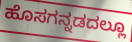
ಹೊಸಗನ್ನಡದಲ್ಲೂ